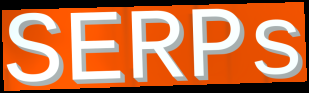
SERPs